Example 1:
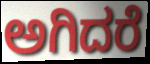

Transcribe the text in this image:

ಅಗಿದರೆ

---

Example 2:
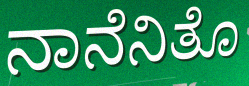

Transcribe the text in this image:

ನಾನೆನಿತೊ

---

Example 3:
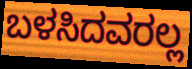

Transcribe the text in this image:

ಬಳಸಿದವರಲ್ಲ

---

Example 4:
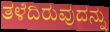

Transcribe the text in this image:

ತಳೆದಿರುವುದನ್ನು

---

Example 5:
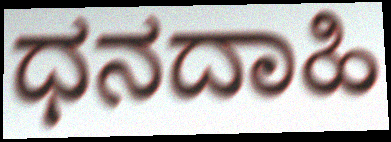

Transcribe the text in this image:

ಧನದಾಹಿ